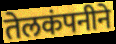
तेलकंपनीने